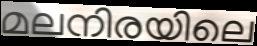
മലനിരയിലെ